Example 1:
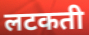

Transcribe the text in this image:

लटकती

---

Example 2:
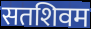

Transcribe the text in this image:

सतशिवम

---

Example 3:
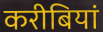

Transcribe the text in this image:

करीबियां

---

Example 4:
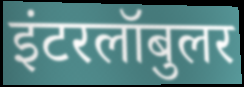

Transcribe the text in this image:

इंटरलॉबुलर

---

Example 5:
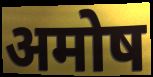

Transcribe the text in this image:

अमोष